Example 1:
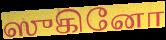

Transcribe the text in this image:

ஸுகினோ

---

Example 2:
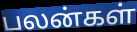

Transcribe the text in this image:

பலன்கள்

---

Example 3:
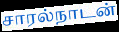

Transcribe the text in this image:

சாரல்நாடன்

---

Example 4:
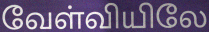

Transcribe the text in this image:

வேள்வியிலே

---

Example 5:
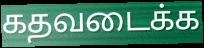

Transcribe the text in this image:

கதவடைக்க